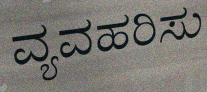
ವ್ಯವಹರಿಸು